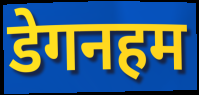
डेगनहम